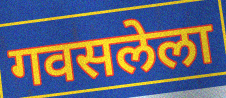
गवसलेला